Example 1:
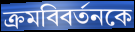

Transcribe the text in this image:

ক্রমবিবর্তনকে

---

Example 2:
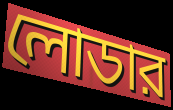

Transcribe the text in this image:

লোডার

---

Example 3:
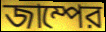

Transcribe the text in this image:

জাম্পের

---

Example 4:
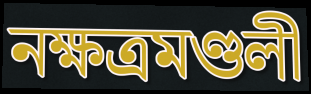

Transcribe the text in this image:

নক্ষত্রমণ্ডলী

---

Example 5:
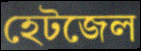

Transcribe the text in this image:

হেটজেল